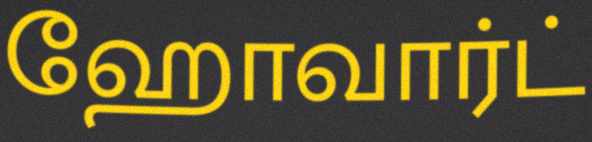
ஹோவார்ட்